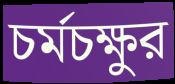
চর্মচক্ষুর